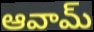
ఆవామ్